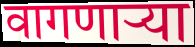
वागणाऱ्या